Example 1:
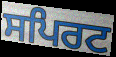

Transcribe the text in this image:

ਸਪਿਰਟ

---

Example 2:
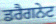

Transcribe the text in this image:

ਡਰੈਗਨੇਟ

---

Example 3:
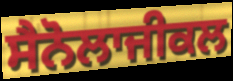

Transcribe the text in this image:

ਸੈਨੋਲਾਜੀਕਲ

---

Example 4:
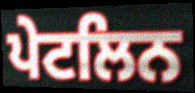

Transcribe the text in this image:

ਪੇਟਲਿਨ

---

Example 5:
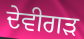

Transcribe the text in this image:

ਦੇਵੀਗੜ